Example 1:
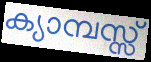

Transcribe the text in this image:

ക്യാമ്പസ്സ്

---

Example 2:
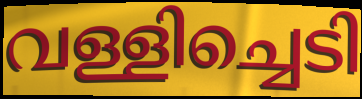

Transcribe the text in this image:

വള്ളിച്ചെടി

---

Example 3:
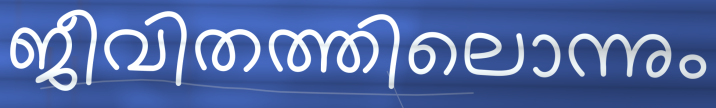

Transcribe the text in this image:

ജീവിതത്തിലൊന്നും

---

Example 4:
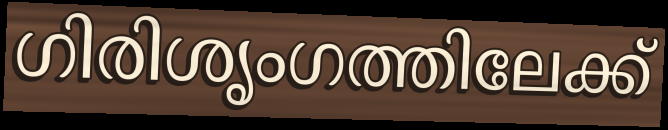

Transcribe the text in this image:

ഗിരിശൃംഗത്തിലേക്ക്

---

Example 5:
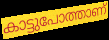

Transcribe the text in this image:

കാട്ടുപോത്താണ്